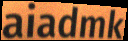
aiadmk